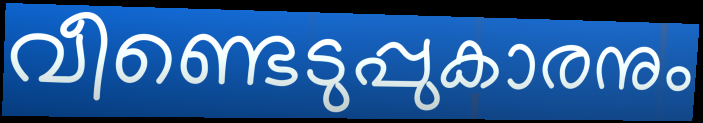
വീണ്ടെടുപ്പുകാരനും